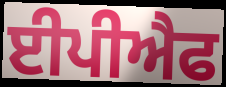
ਈਪੀਐਫ